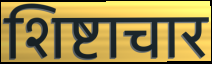
शिष्टाचार